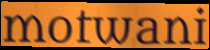
motwani